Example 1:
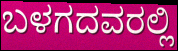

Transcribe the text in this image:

ಬಳಗದವರಲ್ಲಿ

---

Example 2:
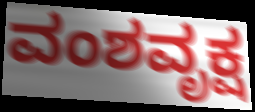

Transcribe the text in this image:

ವಂಶವೃಕ್ಷ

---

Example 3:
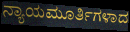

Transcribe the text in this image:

ನ್ಯಾಯಮೂರ್ತಿಗಳಾದ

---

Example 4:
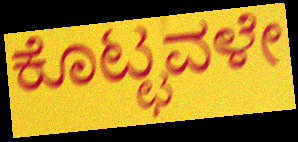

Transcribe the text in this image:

ಕೊಟ್ಟವಳೇ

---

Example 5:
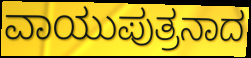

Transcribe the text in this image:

ವಾಯುಪುತ್ರನಾದ